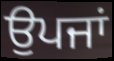
ਉਪਜਾਂ